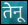
तेनू